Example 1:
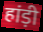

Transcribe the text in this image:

हांड़ी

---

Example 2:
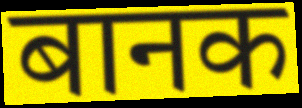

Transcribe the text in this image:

बानक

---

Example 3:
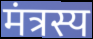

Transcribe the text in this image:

मंत्रस्य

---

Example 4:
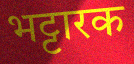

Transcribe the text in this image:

भट्टारक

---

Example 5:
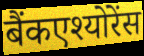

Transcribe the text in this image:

बैंकएश्योरेंस